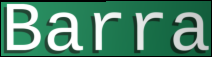
Barra